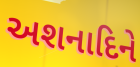
અશનાદિને